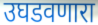
उघडवणारा